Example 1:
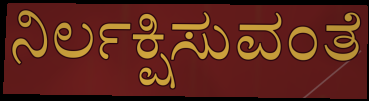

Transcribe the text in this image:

ನಿರ್ಲಕ್ಷಿಸುವಂತೆ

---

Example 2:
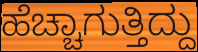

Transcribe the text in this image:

ಹೆಚ್ಚಾಗುತ್ತಿದ್ದು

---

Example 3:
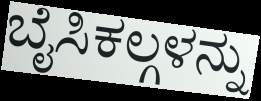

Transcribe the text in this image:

ಬೈಸಿಕಲ್ಗಳನ್ನು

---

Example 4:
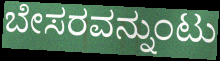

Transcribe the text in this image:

ಬೇಸರವನ್ನುಂಟು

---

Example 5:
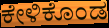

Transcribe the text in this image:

ಕೇಳಿಕೊಂಡ